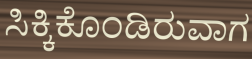
ಸಿಕ್ಕಿಕೊಂಡಿರುವಾಗ